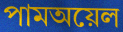
পামঅয়েল